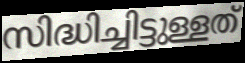
സിദ്ധിച്ചിട്ടുള്ളത്